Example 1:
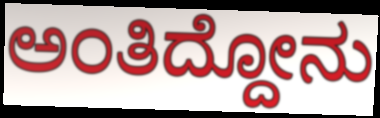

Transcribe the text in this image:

ಅಂತಿದ್ದೋನು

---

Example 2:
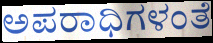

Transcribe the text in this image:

ಅಪರಾಧಿಗಳಂತೆ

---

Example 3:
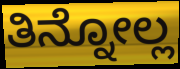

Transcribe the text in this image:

ತಿನ್ನೋಲ್ಲ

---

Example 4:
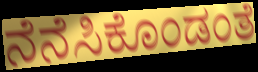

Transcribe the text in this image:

ನೆನೆಸಿಕೊಂಡಂತೆ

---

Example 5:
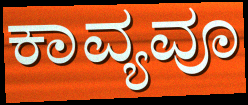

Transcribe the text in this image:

ಕಾವ್ಯವೂ